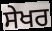
ਸੇਖਰ